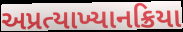
અપ્રત્યાખ્યાનક્રિયા